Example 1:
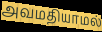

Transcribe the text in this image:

அவமதியாமல்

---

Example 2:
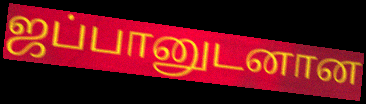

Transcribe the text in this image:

ஜப்பானுடனான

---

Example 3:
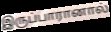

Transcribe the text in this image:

இருப்பாரானால்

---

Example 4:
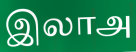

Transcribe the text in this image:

இலாஅ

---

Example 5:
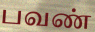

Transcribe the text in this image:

பவண்